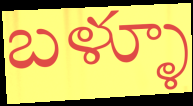
బళ్ళూ